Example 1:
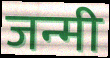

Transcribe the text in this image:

जन्मी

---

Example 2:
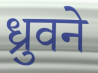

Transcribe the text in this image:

ध्रुवने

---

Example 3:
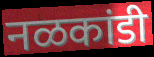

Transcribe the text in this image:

नळकांडी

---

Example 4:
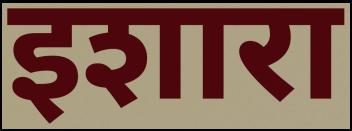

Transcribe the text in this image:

इशारा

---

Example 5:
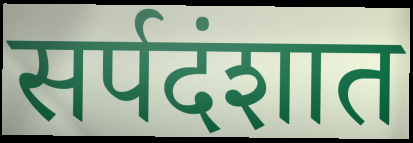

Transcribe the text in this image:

सर्पदंशात